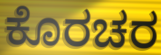
ಕೊರಚರ